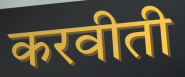
करवीती